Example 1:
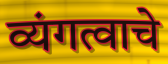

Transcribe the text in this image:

व्यंगत्वाचे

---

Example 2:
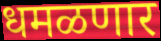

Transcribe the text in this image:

धमळणार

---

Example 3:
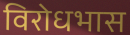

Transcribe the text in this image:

विरोधभास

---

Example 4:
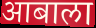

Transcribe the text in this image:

आबाला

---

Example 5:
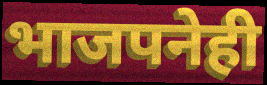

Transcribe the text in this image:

भाजपनेही